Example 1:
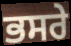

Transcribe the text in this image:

ਭਸਰੇ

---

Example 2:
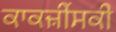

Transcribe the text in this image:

ਕਾਕਜ਼ੀੰਸਕੀ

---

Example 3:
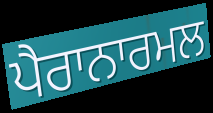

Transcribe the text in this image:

ਪੈਰਾਨਾਰਮਲ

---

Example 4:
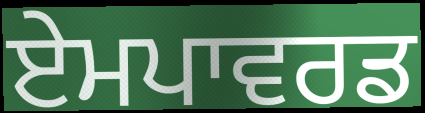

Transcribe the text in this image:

ਏਮਪਾਵਰਡ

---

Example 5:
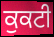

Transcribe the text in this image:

ਕੁਕਟੀ